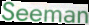
Seeman